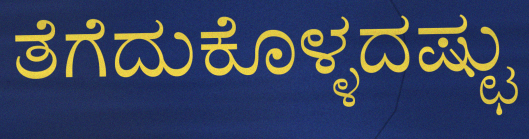
ತೆಗೆದುಕೊಳ್ಳದಷ್ಟು